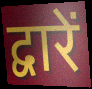
द्वारें